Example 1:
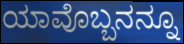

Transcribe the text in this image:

ಯಾವೊಬ್ಬನನ್ನೂ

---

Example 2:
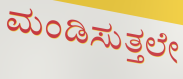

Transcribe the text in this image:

ಮಂಡಿಸುತ್ತಲೇ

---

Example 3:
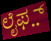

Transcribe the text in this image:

ಲೈಫ಼್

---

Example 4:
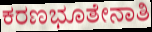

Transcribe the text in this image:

ಕರಣಭೂತೇನಾತಿ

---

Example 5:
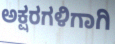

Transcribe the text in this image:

ಅಕ್ಷರಗಳಿಗಾಗಿ